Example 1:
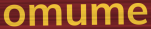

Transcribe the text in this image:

omume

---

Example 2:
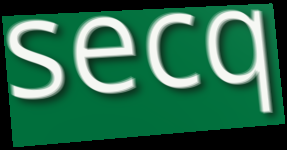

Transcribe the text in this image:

secq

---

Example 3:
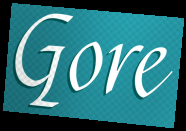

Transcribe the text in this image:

Gore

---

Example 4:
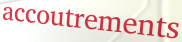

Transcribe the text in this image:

accoutrements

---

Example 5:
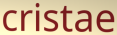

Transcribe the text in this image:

cristae